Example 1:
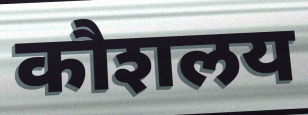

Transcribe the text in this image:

कौशलय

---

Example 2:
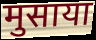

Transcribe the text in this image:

मुसाया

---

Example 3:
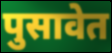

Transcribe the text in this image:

पुसावेत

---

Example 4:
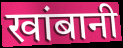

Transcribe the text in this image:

खांबानी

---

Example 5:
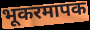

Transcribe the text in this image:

भूकरमापक